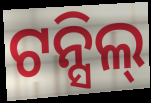
ଟନ୍ସିଲ୍